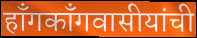
हाँगकाँगवासीयांची